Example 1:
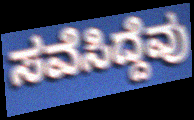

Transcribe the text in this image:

ಸವೆಸಿದ್ದೆವು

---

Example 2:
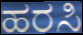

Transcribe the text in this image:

ಹರಸಿ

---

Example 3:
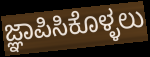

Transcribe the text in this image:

ಜ್ಞಾಪಿಸಿಕೊಳ್ಳಲು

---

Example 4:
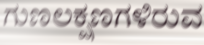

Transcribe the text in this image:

ಗುಣಲಕ್ಷಣಗಳಿರುವ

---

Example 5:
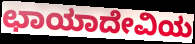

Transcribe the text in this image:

ಛಾಯಾದೇವಿಯ